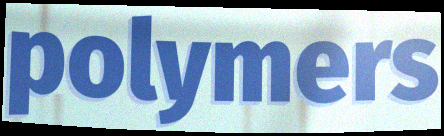
polymers